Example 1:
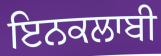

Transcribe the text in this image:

ਇਨਕਲਾਬੀ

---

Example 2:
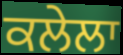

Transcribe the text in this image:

ਕਲੇਲਾ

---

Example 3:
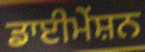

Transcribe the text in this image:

ਡਾਈਮੇਂਸ਼ਨ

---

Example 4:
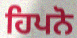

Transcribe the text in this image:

ਹਿਪਨੋ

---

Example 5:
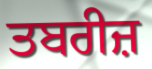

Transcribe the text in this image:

ਤਬਰੀਜ਼